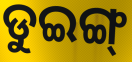
ଡୁଇଙ୍ଗ୍